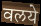
वलये